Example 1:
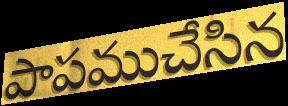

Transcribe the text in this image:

పాపముచేసిన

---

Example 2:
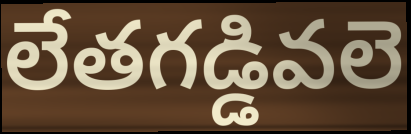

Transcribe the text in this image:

లేతగడ్డివలె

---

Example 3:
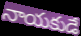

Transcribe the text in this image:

నాయకుడే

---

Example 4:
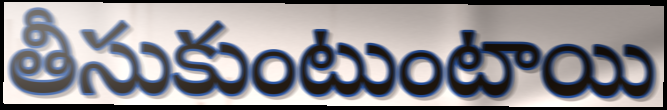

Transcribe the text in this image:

తీసుకుంటుంటాయి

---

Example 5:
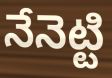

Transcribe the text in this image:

నేనెట్టి